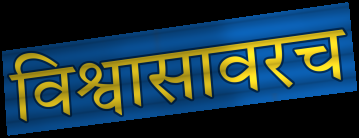
विश्वासावरच